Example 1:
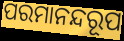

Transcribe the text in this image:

ପରମାନନ୍ଦରୂପ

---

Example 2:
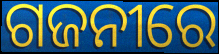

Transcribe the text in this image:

ଗଜନୀରେ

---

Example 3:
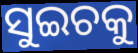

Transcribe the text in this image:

ସୁଇଚକୁ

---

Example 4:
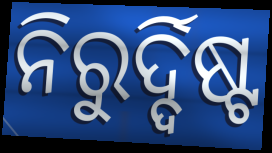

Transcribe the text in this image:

ନିରୁର୍ଦ୍ଦିଷ୍ଟ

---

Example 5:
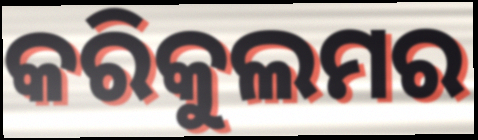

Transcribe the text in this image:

କରିକୁଲମର